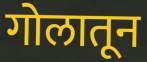
गोलातून